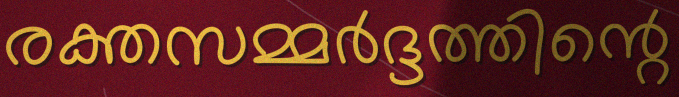
രക്തസമ്മർദ്ദത്തിന്റെ